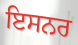
ਇਸਨਰ